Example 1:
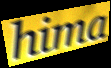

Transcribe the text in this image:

hima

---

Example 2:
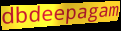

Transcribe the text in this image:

dbdeepagam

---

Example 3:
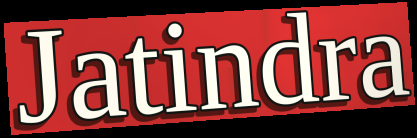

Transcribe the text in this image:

Jatindra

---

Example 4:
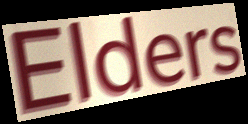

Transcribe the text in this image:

Elders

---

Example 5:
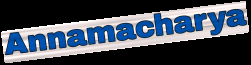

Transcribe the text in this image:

Annamacharya